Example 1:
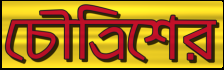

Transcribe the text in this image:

চৌত্রিশের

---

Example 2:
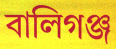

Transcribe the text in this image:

বালিগঞ্জ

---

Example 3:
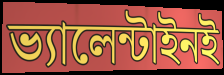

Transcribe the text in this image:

ভ্যালেন্টাইনই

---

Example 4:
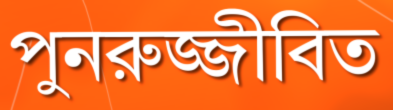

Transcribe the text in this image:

পুনরুজ্জীবিত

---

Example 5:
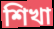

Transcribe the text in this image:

শিখা